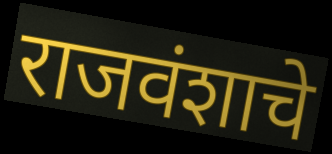
राजवंशाचे